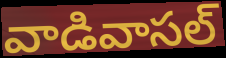
వాడివాసల్